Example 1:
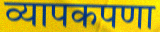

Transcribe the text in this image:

व्यापकपणा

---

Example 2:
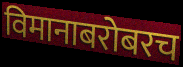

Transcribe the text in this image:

विमानाबरोबरच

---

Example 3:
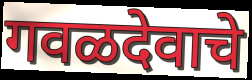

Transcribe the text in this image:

गवळदेवाचे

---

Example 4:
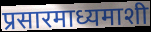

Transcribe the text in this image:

प्रसारमाध्यमाशी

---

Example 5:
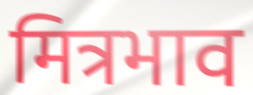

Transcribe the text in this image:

मित्रभाव